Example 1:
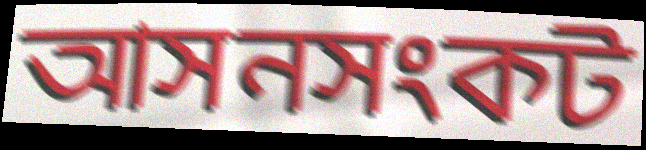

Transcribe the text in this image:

আসনসংকট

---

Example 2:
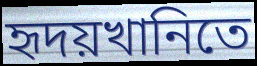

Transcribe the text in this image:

হৃদয়খানিতে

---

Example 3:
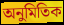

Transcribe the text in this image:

অনুমিতিক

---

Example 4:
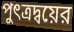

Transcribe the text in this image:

পুৎত্রদ্বয়ের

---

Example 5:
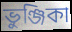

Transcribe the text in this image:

ভুঞ্জিকা